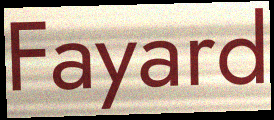
Fayard